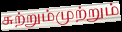
சுற்றும்முற்றும்